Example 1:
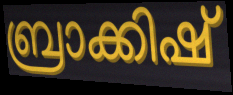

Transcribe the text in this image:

ബ്രാക്കിഷ്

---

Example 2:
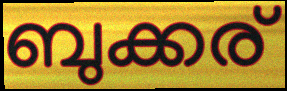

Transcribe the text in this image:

ബുക്കര്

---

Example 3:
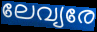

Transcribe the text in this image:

ലേവ്യരേ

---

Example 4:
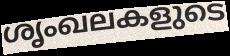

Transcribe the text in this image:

ശൃംഖലകളുടെ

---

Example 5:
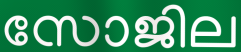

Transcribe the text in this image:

സോജില